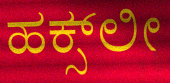
ಹಕ್ಸ್‌ಲೀ